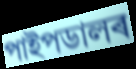
পাইপডালৰ